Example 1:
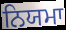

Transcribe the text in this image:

ਨਿਯਮਾ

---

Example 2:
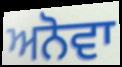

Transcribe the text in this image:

ਅਨੋਵਾ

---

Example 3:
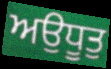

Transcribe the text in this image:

ਅਉਧੂਤੁ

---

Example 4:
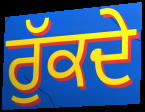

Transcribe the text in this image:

ਰੁੱਕਦੇ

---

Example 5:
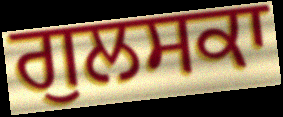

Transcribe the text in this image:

ਗੁਲਸਕਾ